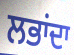
ਲਭਾਂਦਾ